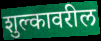
शुल्कावरील